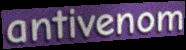
antivenom